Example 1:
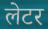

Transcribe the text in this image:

लेटर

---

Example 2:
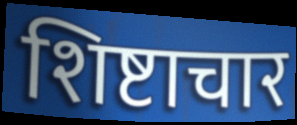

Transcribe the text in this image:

शिष्टाचार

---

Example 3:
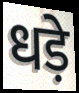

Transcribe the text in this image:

धड़े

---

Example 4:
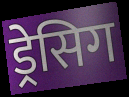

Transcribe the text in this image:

ड्रेसिग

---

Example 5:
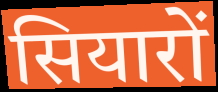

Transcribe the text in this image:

सियारों